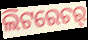
ଲିଟରେଚର୍